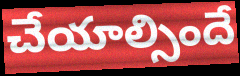
చేయాల్సిందే